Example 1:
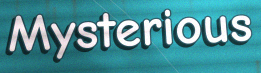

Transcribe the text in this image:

Mysterious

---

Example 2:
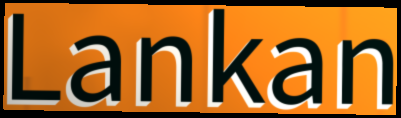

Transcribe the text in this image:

Lankan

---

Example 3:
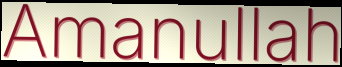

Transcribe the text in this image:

Amanullah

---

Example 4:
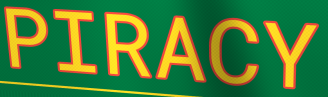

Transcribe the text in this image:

PIRACY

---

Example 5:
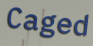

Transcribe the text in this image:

Caged